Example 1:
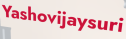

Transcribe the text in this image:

Yashovijaysuri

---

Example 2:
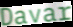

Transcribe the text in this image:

Davar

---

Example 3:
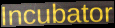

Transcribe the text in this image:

Incubator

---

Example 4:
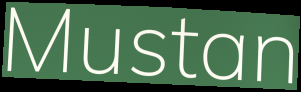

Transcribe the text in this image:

Mustan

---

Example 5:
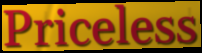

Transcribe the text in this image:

Priceless